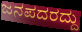
ಜನಪದರದ್ದು